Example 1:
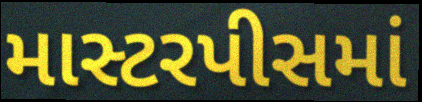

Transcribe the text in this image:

માસ્ટરપીસમાં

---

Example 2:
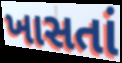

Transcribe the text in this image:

ખાસતાં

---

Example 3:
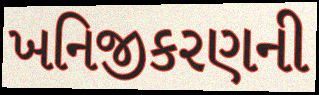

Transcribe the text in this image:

ખનિજીકરણની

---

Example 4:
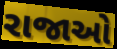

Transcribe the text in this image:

રાજાઓ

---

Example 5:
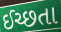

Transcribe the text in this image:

ઈચ્છતા